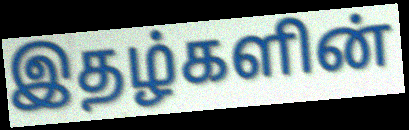
இதழ்களின்